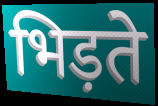
भिड़ते